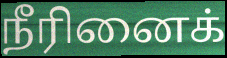
நீரினைக்